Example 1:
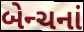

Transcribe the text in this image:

બેન્ચનાં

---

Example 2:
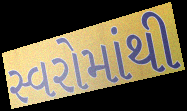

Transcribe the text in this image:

સ્વરોમાંથી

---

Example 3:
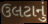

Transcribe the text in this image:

ઉલટાનું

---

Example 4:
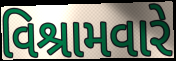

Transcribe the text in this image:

વિશ્રામવારે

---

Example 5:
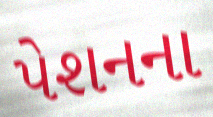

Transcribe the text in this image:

પેશનના